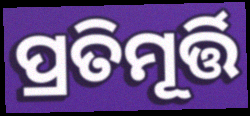
ପ୍ରତିମୂର୍ତ୍ତି